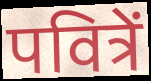
पवित्रें